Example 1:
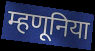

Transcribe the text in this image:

म्हणूनिया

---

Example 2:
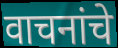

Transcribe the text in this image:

वाचनांचे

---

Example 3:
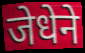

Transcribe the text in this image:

जेधेने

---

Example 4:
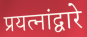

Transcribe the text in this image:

प्रयत्नांद्वारे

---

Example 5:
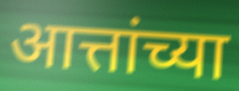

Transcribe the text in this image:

आत्तांच्या